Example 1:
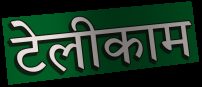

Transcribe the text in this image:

टेलीकाम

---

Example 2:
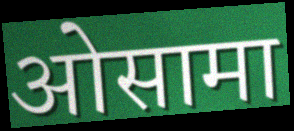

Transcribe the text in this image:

ओसामा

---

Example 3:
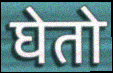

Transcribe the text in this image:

घेतो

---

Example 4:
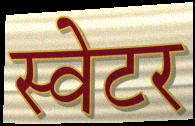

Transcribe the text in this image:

स्वेटर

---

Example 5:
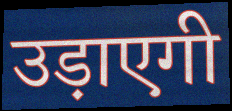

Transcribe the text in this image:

उड़ाएगी